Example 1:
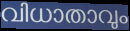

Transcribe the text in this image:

വിധാതാവും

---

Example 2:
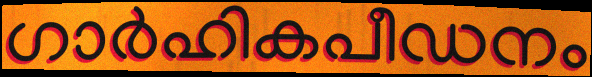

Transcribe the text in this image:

ഗാർഹികപീഡനം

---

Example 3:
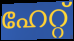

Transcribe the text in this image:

ഹേറ്റ്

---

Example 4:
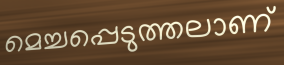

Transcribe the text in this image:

മെച്ചപ്പെടുത്തലാണ്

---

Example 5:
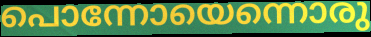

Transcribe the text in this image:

പൊന്നോയെന്നൊരു